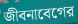
জীবনাবেগের